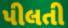
પીલતી